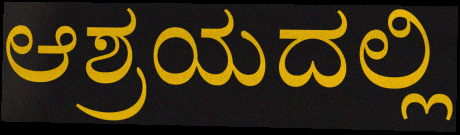
ಆಶ್ರಯದಲ್ಲಿ